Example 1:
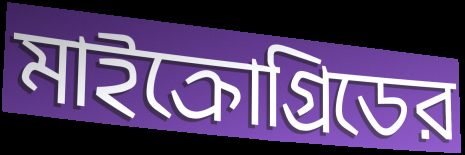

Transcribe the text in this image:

মাইক্রোগ্রিডের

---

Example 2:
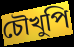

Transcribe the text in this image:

চৌখুপি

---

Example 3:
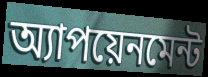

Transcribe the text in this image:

অ্যাপয়েনমেন্ট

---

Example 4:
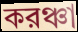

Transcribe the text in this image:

করঞ্চা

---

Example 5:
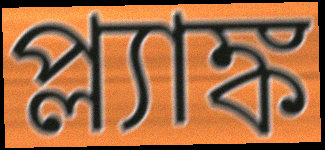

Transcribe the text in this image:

প্ল্যাঙ্ক